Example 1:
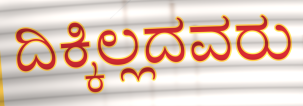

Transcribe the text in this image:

ದಿಕ್ಕಿಲ್ಲದವರು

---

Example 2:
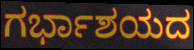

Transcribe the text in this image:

ಗರ್ಭಾಶಯದ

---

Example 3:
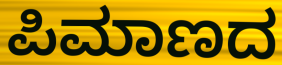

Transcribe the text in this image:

ಪಿಮಾಣದ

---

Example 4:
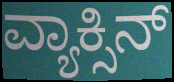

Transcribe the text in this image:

ವ್ಯಾಕ್ಸಿನ್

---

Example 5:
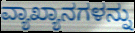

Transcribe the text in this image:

ವ್ಯಾಖ್ಯಾನಗಳನ್ನು